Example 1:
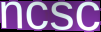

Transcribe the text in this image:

ncsc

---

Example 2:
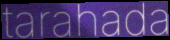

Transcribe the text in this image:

tarahada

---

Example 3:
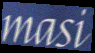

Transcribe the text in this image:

masi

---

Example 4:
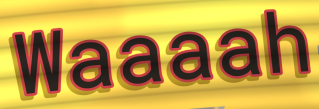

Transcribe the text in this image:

Waaaah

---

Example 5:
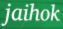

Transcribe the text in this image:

jaihok